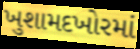
ખુશામદખોરમાં